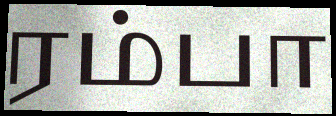
ரம்பா